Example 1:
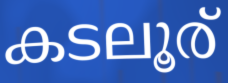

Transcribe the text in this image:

കടലൂര്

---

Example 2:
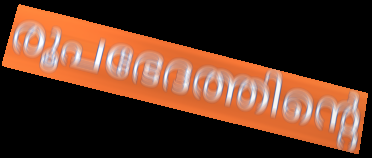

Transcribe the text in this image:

രൂപഭേദത്തിന്റെ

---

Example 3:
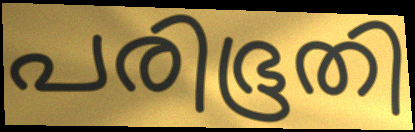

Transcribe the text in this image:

പരിഭൂതി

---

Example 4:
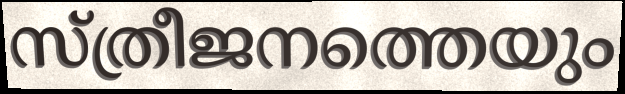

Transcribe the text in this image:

സ്ത്രീജനത്തെയും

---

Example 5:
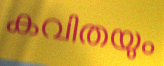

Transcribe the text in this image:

കവിതയും